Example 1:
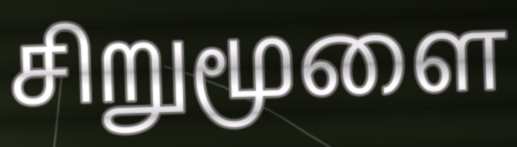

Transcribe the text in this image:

சிறுமூளை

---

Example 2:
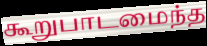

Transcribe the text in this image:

கூறுபாடமைந்த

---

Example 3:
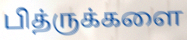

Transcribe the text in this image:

பித்ருக்களை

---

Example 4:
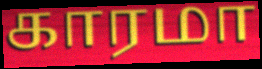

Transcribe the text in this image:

காரமா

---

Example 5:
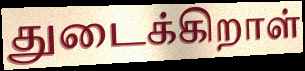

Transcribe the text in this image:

துடைக்கிறாள்